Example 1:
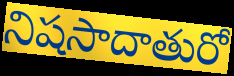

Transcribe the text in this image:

నిషసాదాతురో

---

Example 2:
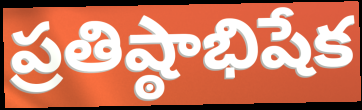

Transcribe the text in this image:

ప్రతిష్ఠాభిషేక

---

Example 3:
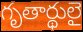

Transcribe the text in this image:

గృతార్థులై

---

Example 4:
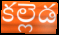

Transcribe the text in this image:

కల్లెడ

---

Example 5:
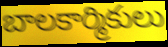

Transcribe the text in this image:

బాలకార్మికులు